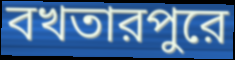
বখতারপুরে